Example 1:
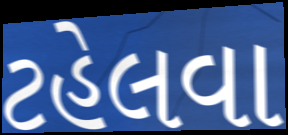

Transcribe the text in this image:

ટહેલવા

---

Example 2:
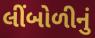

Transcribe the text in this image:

લીંબોળીનું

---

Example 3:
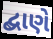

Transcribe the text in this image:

દ્બાણે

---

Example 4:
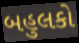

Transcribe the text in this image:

બહુલકો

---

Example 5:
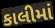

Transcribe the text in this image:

કાલીમાં